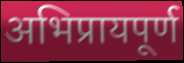
अभिप्रायपूर्ण